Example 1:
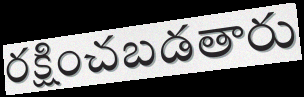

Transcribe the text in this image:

రక్షించబడతారు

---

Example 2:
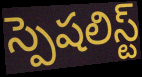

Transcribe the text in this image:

స్పెషలిస్ట్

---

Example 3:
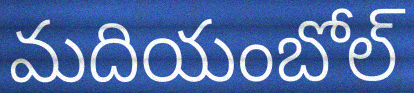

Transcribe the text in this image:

మదియంబోల్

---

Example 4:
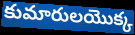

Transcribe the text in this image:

కుమారులయొక్క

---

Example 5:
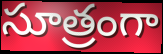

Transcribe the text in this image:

సూత్రంగా